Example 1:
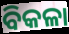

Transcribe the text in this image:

ବିକଳା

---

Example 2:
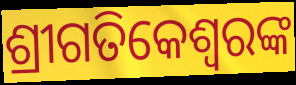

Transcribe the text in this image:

ଶ୍ରୀଗତିକେଶ୍ବରଙ୍କ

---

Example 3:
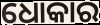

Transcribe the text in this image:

ଧୋକାର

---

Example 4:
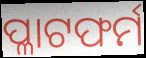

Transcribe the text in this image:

ପ୍ଳାଟଫର୍ମ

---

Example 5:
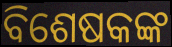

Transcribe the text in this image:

ବିଶେଷକଙ୍କ